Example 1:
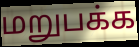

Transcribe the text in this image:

மறுபக்க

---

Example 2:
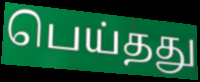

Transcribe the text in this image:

பெய்தது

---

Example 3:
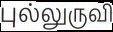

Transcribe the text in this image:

புல்லுருவி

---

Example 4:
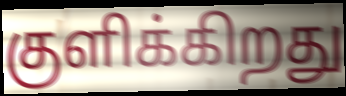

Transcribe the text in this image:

குளிக்கிறது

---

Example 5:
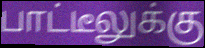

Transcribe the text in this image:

பாட்டீலுக்கு